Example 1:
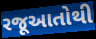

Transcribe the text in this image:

રજૂઆતોથી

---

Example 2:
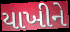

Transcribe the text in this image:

યાખીને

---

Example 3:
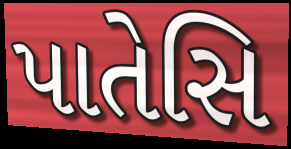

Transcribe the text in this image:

પાતેસિ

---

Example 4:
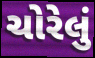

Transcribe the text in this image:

ચોરેલું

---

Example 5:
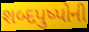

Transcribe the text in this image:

શબ્દપુષ્પોની